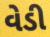
વેડી